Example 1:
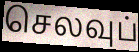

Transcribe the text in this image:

செலவுப்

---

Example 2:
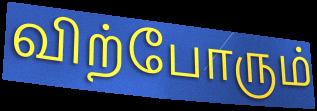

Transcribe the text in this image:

விற்போரும்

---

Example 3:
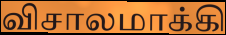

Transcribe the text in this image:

விசாலமாக்கி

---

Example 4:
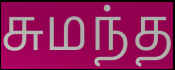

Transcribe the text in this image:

சுமந்த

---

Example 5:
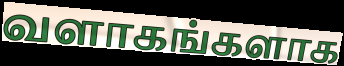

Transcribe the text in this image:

வளாகங்களாக